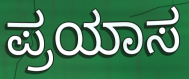
ಪ್ರಯಾಸ